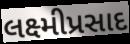
લક્ષ્મીપ્રસાદ